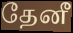
தேனீ